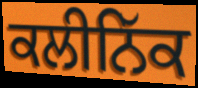
ਕਲੀਨਿੱਕ